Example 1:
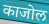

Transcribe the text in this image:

काजोल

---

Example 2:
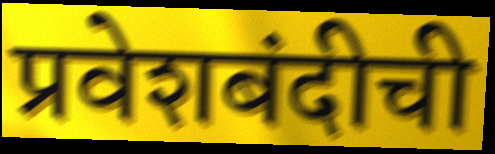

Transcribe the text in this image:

प्रवेशबंदीची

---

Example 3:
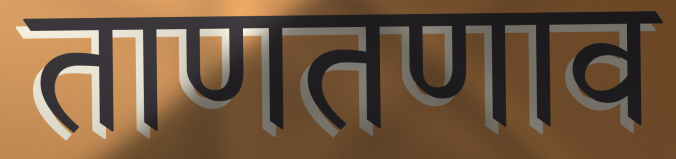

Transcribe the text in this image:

ताणतणाव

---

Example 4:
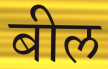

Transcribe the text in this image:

बील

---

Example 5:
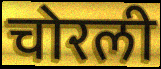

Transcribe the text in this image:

चोरली